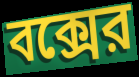
বক্সের